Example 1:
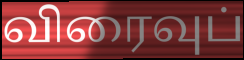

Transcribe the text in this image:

விரைவுப்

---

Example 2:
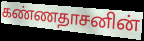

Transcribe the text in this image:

கண்ணதாசனின்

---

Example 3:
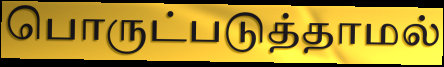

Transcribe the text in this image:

பொருட்படுத்தாமல்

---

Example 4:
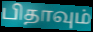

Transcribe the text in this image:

பிதாவும்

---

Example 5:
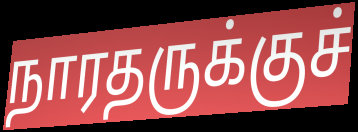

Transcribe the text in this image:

நாரதருக்குச்